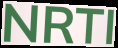
NRTI